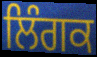
ਲਿੰਗਕ